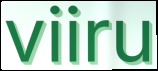
viiru